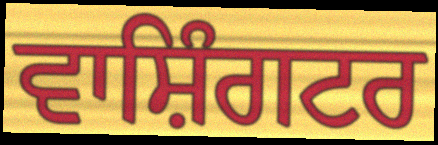
ਵਾਸ਼ਿੰਗਟਰ